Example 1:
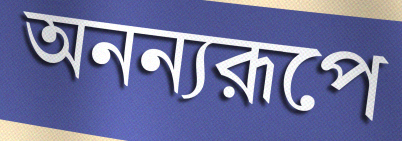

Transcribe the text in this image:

অনন্যরূপে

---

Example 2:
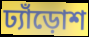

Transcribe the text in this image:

ঢ্যাঁড়োশ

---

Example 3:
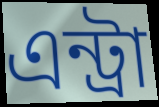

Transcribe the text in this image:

এন্ট্রা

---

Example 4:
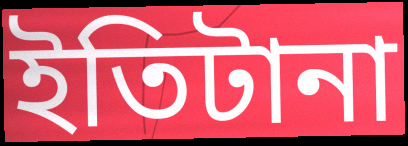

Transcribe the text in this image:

ইতিটানা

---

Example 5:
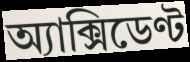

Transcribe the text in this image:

অ্যাক্সিডেণ্ট